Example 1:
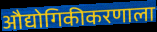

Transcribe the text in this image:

औद्योगिकीकरणाला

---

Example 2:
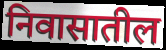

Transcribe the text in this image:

निवासातील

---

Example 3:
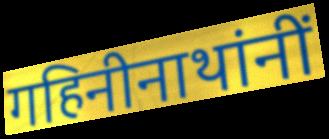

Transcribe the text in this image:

गहिनीनाथांनीं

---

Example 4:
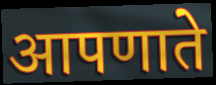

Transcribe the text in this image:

आपणाते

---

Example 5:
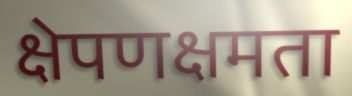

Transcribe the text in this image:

क्षेपणक्षमता